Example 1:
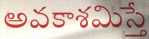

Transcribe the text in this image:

అవకాశమిస్తే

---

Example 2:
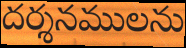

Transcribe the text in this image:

దర్శనములను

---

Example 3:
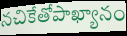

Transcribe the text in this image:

నచికేతోపాఖ్యానం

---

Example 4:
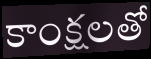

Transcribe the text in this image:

కాంక్షలతో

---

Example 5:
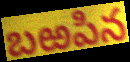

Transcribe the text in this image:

బఱపిన